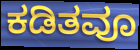
ಕಡಿತವೂ